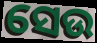
ସେଉ